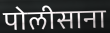
पोलीसाना